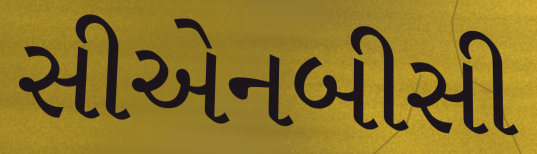
સીએનબીસી